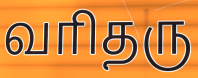
வரிதரு